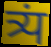
त्र्यं